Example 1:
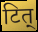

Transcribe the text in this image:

टित्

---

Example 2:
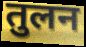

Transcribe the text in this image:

तुलन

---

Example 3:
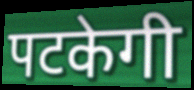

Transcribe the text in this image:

पटकेगी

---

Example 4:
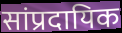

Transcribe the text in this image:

सांप्रदायिक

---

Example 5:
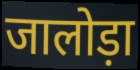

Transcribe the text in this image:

जालोड़ा